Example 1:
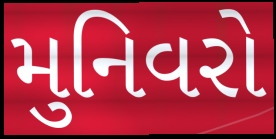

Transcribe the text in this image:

મુનિવરો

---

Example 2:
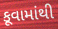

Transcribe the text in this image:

કૂવામાંથી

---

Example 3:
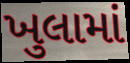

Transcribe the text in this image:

ખુલામાં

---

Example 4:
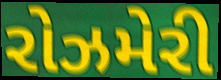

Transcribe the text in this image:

રોઝમેરી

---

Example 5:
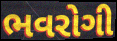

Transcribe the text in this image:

ભવરોગી